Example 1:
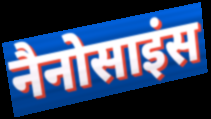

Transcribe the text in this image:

नैनोसाइंस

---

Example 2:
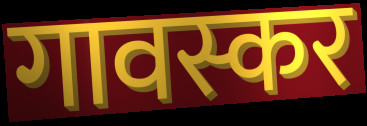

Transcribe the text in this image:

गावस्‍कर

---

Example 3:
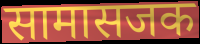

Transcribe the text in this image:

सामासजक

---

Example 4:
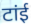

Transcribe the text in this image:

टांई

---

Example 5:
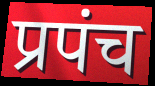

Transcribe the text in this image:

प्रपंच